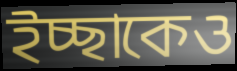
ইচ্ছাকেও